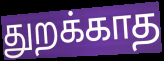
துறக்காத